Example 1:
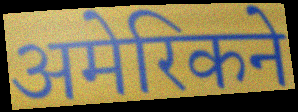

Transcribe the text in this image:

अमेरिकने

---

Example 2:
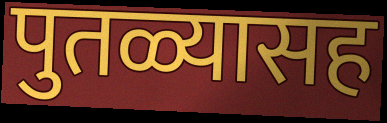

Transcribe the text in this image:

पुतळ्यासह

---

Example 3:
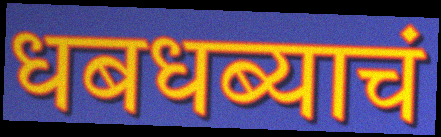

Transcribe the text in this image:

धबधब्याचं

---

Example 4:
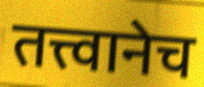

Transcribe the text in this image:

तत्त्वानेच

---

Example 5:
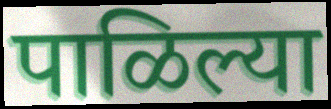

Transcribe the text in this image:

पाळिल्या